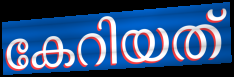
കേറിയത്